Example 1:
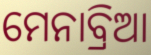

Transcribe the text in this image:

ମେନାବ୍ରିଆ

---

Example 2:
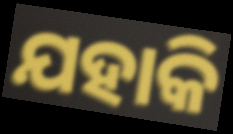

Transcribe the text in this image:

ଯହାକି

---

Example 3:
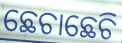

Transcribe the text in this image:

ଛେଚାଛେଚି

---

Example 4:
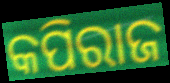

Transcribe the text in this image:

କପିରାଜ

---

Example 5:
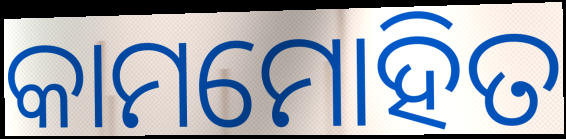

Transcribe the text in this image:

କାମମୋହିତ